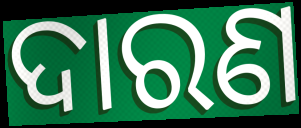
ଦାରଣ